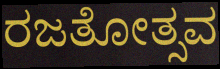
ರಜತೋತ್ಸವ